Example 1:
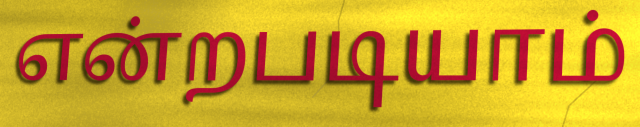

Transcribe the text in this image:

என்றபடியாம்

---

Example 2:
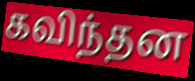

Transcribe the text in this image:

கவிந்தன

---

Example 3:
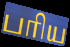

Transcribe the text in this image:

பரிய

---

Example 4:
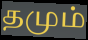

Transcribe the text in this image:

தமும்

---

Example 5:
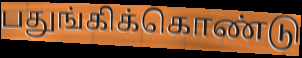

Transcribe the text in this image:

பதுங்கிக்கொண்டு